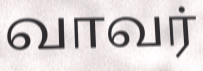
வாவர்